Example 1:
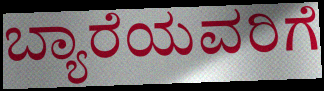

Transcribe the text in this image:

ಬ್ಯಾರೆಯವರಿಗೆ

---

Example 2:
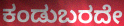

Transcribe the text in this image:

ಕಂಡುಬರದೇ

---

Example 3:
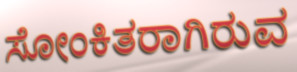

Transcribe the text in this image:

ಸೋಂಕಿತರಾಗಿರುವ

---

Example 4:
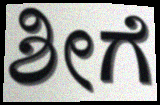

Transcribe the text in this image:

ಶೀಗೆ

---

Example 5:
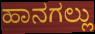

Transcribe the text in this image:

ಹಾನಗಲ್ಲು